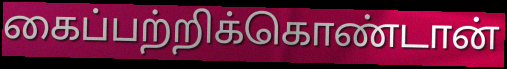
கைப்பற்றிக்கொண்டான்